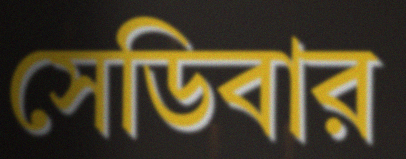
সেডিবার